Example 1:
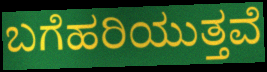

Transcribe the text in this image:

ಬಗೆಹರಿಯುತ್ತವೆ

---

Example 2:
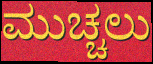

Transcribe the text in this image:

ಮುಚ್ಚಲು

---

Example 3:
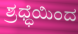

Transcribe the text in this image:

ಶ್ರಧ್ಧೆಯಿಂದ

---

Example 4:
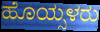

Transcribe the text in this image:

ಹೊಯ್ಸಳರು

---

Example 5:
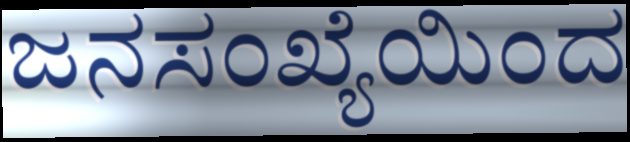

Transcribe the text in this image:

ಜನಸಂಖ್ಯೆಯಿಂದ